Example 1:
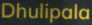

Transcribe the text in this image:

Dhulipala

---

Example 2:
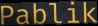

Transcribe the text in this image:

Pablik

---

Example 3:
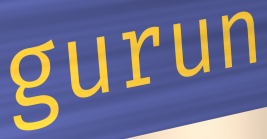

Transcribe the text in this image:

gurun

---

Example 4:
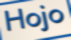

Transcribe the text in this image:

Hojo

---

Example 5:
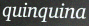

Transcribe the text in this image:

quinquina